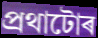
প্ৰথাটোৰ